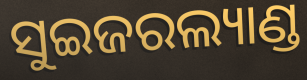
ସୁଇଜରଲ୍ୟାଣ୍ଡ